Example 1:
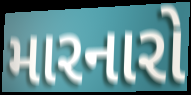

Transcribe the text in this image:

મારનારો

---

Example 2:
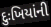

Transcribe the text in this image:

દુઃખિયાંની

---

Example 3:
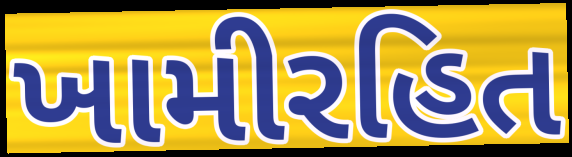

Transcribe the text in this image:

ખામીરહિત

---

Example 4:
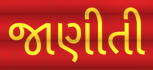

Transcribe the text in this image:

જાણીતી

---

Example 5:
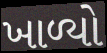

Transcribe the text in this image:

ખાળ્યો